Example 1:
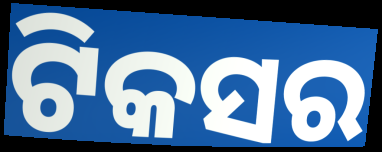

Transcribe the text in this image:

ଟିକସର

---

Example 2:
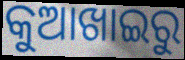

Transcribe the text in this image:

କୁଆଖାଇରୁ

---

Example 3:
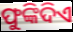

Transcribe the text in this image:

ଫୁଙ୍କିଦିଏ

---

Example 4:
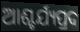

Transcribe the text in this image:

ଆଶ୍ଚର୍ଯ୍ୟପ୍ରଦ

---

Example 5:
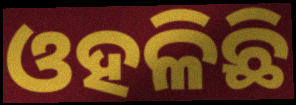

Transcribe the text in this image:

ଓହଳିଛି